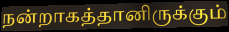
நன்றாகத்தானிருக்கும்